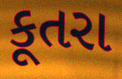
કૂતરા